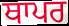
ਥਾਪਰ